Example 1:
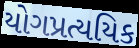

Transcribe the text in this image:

યોગપ્રત્યયિક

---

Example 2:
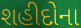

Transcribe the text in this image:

શહીદોના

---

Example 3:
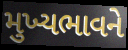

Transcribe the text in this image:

મુખ્યભાવને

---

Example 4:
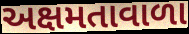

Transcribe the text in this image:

અક્ષમતાવાળા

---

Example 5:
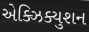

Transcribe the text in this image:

એક્ઝિક્યુશન